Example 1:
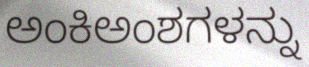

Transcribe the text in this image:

ಅಂಕಿಅಂಶಗಳನ್ನು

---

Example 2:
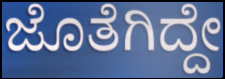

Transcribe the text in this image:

ಜೊತೆಗಿದ್ದೇ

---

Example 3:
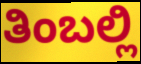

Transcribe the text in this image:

ತಿಂಬಲ್ಲಿ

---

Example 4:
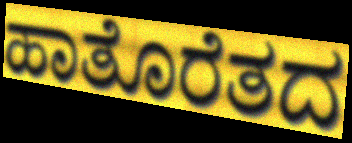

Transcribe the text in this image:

ಹಾತೊರೆತದ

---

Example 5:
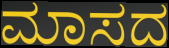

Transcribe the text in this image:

ಮಾಸದ